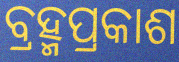
ବ୍ରହ୍ମପ୍ରକାଶ